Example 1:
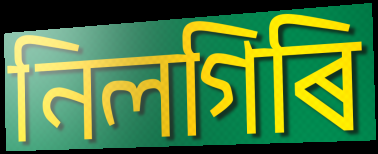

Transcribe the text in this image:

নিলগিৰি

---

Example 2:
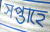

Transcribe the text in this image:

সপ্তাহে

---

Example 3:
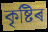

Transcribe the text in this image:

কৃষ্টিৰ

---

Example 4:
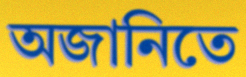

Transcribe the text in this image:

অজানিতে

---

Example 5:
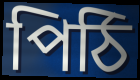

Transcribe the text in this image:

পিঠি